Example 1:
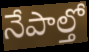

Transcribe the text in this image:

నేపాల్తో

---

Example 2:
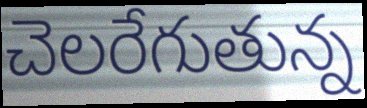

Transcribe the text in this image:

చెలరేగుతున్న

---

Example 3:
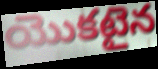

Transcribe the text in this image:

యొకటైన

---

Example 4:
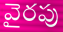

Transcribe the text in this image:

వైరపు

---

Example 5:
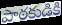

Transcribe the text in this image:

పాఠకుడికి